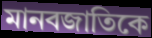
মানবজাতিকে